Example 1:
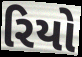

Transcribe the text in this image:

રિયો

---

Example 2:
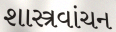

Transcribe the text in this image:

શાસ્ત્રવાંચન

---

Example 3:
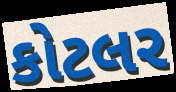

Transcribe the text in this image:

કોટલર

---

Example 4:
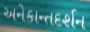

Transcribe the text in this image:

અનેકાન્તદર્શન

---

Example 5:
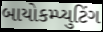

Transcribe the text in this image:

બાયોકમ્પ્યુટિંગ